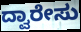
ದ್ವಾರೇಸು